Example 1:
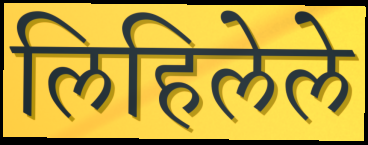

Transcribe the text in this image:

लिहिलेले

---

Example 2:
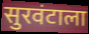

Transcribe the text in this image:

सुरवंटाला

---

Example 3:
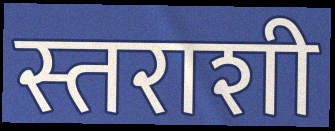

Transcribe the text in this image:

स्तराशी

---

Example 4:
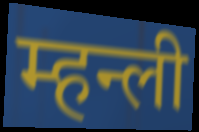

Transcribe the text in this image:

म्हन्ली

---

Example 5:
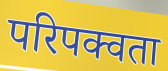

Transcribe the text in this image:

परिपक्वता